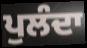
ਪੁਲੰਦਾ